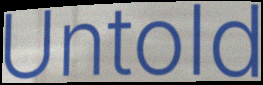
Untold